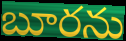
బూరను